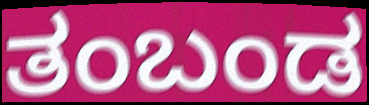
ತಂಬಂಡ